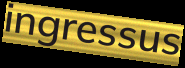
ingressus